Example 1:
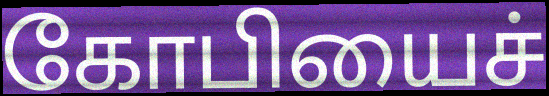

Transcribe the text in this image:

கோபியைச்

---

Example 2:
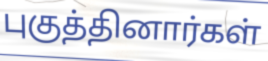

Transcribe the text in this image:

புகுத்தினார்கள்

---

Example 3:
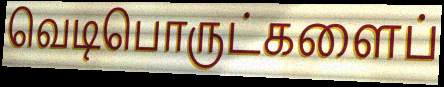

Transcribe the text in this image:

வெடிபொருட்களைப்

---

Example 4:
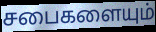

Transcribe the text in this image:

சபைகளையும்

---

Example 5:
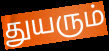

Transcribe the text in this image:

துயரும்